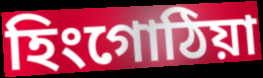
হিংগোঠিয়া